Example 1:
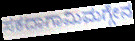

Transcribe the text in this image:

ಸಕದಾಗಾಮಿಮಗ್ಗೇನ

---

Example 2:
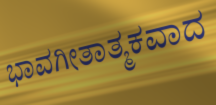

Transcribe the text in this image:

ಭಾವಗೀತಾತ್ಮಕವಾದ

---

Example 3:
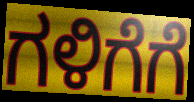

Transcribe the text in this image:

ಗಳಿಗೆಗೆ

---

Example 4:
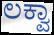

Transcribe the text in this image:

ಲಕ್ವಾ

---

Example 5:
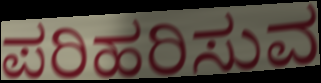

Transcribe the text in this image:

ಪರಿಹರಿಸುವ